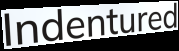
Indentured